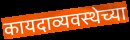
कायदाव्यवस्थेच्या